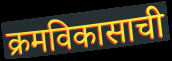
क्रमविकासाची